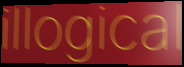
illogical